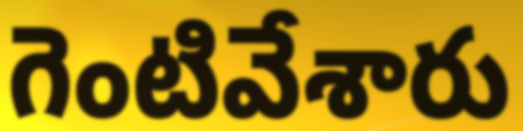
గెంటివేశారు